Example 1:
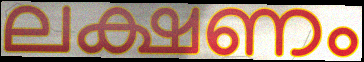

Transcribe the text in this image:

ലക്ഷണം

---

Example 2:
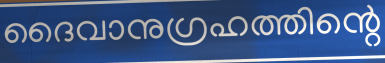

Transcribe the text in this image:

ദൈവാനുഗ്രഹത്തിന്റെ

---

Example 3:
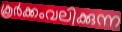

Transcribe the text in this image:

കൂർക്കംവലിക്കുന്ന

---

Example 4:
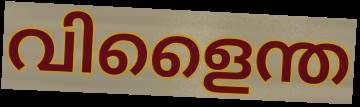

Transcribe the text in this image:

വിളൈന്ത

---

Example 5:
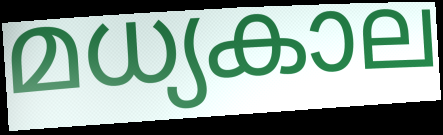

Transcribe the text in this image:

മധ്യകാല